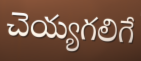
చెయ్యగలిగే